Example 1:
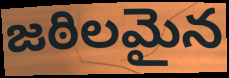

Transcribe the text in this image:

జఠిలమైన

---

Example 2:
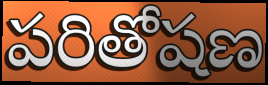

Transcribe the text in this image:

పరితోషణ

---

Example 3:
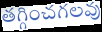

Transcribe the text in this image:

తగ్గించగలవు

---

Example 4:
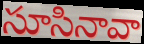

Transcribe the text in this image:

సూసినావా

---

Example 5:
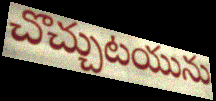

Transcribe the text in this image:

చొచ్చుటయును